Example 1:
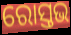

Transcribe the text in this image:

ରୋସ୍ତଭ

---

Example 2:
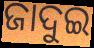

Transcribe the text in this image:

ଜାଦୁଇ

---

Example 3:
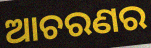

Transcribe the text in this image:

ଆଚରଣର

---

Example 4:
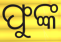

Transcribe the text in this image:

ଫୁଙ୍କ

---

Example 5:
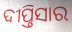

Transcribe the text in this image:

ଦୀପ୍ତିସାର